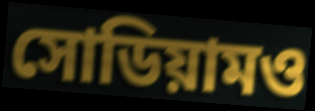
সোডিয়ামও